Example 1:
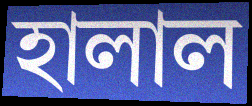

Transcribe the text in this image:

হালাল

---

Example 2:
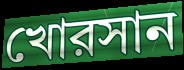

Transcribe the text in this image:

খোরসান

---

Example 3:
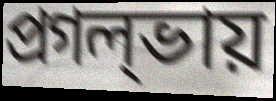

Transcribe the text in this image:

প্রগল্‌ভায়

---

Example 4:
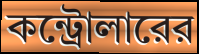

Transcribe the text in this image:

কন্ট্রোলারের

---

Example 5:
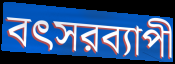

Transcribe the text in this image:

বৎসরব্যাপী